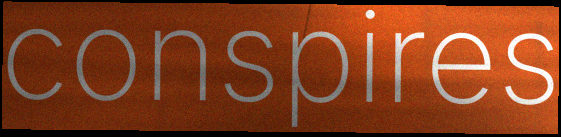
conspires